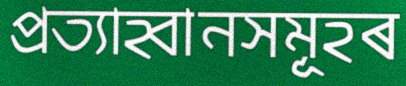
প্ৰত্যাহ্বানসমূহৰ